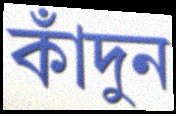
কাঁদুন